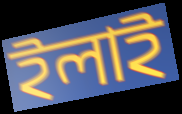
ইলাই